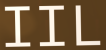
IIL